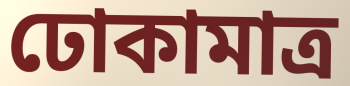
ঢোকামাত্র